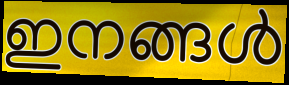
ഇനങ്ങൾ